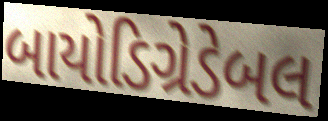
બાયોડિગ્રેડેબલ